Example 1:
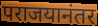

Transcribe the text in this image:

पराजयानंतर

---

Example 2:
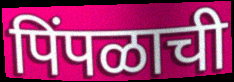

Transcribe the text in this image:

पिंपळाची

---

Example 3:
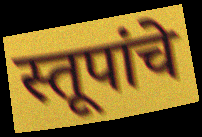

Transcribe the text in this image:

स्तूपांचे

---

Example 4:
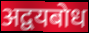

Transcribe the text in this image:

अद्वयबोध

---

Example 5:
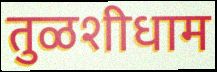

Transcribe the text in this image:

तुळशीधाम